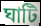
ঘাটি